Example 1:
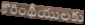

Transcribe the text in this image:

కొరింథీయులకు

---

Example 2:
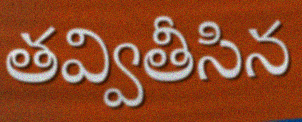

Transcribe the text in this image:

తవ్వితీసిన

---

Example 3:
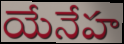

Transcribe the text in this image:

యేనేహ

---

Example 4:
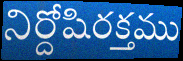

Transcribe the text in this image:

నిర్దోషిరక్తము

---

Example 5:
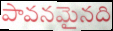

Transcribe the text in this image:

పావనమైనది